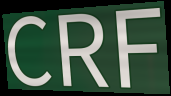
CRF